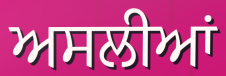
ਅਸਲੀਆਂ